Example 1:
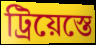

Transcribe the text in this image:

ট্ৰিয়েস্তে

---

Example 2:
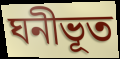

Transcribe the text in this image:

ঘনীভূত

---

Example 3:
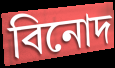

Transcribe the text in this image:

বিনোদ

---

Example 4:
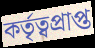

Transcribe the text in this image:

কৰ্তৃত্বপ্ৰাপ্ত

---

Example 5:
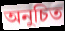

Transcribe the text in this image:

অনুচিত